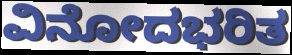
ವಿನೋದಭರಿತ